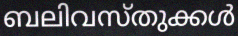
ബലിവസ്തുക്കൾ